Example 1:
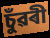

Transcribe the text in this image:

চুঁৱৰী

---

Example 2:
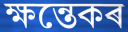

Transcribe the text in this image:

ক্ষন্তেকৰ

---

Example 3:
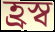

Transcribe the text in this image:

হ্ৰস্ব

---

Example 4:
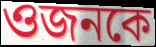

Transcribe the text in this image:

ওজনকে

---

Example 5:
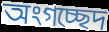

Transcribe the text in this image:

অংগচ্ছেদ